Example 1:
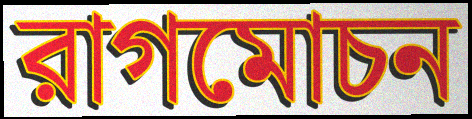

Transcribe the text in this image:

রাগমোচন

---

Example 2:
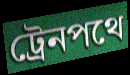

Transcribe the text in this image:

ট্রেনপথে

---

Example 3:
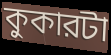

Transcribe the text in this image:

কুকারটা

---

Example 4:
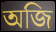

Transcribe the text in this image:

অজি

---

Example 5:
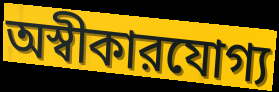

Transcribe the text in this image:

অস্বীকারযোগ্য